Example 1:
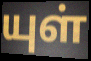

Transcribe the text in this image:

யுள்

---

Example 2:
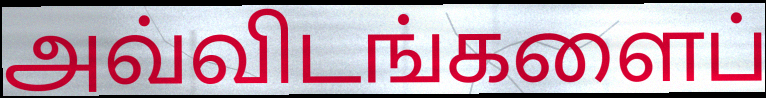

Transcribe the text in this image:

அவ்விடங்களைப்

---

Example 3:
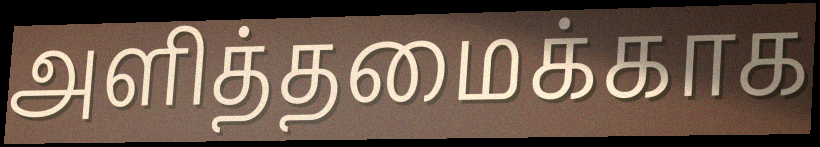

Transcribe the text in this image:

அளித்தமைக்காக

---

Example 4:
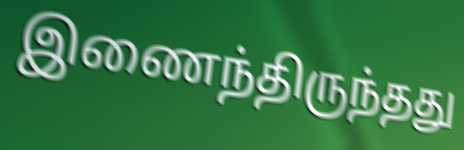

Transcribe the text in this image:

இணைந்திருந்தது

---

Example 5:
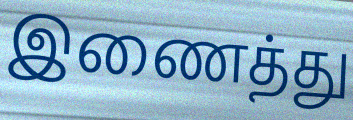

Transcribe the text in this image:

இணைத்து